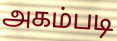
அகம்படி